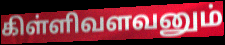
கிள்ளிவளவனும்